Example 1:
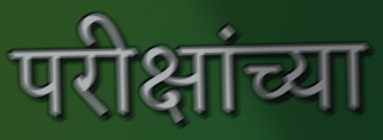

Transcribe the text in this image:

परीक्षांच्या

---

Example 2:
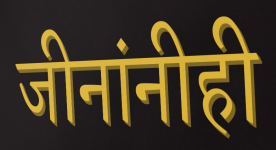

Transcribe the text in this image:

जीनांनीही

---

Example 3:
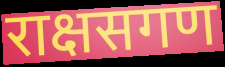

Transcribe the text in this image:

राक्षसगण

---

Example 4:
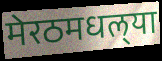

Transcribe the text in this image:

मेरठमधल्या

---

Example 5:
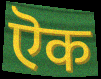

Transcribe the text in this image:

ऎक